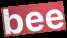
bee